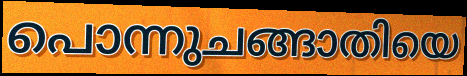
പൊന്നുചങ്ങാതിയെ